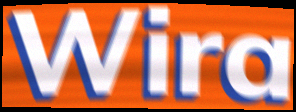
Wira